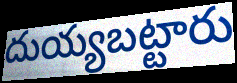
దుయ్యబట్టారు